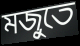
মজুতে